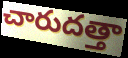
చారుదత్తా